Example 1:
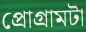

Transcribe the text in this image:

প্রোগ্রামটা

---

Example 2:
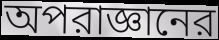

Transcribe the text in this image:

অপরাজ্ঞানের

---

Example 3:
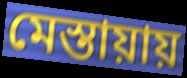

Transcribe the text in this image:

মেস্তায়ায়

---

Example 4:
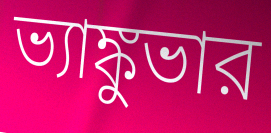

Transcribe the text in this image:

ভ্যাঙ্কুভার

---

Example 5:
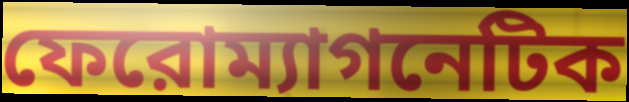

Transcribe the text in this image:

ফেরোম্যাগনেটিক